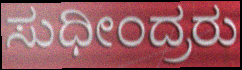
ಸುಧೀಂದ್ರರು